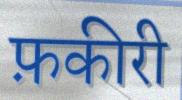
फ़कीरी